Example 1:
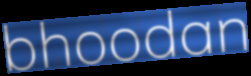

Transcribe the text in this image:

bhoodan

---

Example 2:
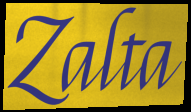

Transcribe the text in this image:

Zalta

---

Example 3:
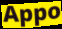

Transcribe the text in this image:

Appo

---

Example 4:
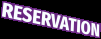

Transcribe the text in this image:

RESERVATION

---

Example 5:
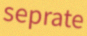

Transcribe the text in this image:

seprate